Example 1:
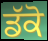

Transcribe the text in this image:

ਡੱਕੋ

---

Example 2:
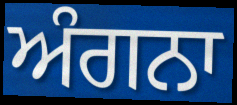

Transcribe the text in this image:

ਅੰਗਨਾ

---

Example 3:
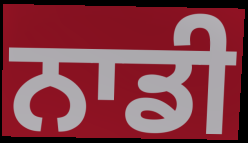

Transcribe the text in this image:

ਨਾਡੀ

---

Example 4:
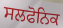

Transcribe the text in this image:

ਸਲਫੋਨਿਕ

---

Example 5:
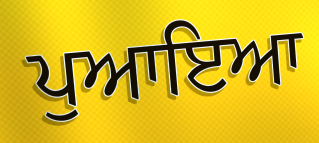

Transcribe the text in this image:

ਪੁਆਇਆ